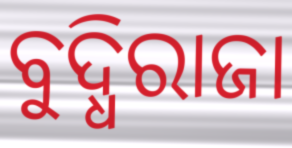
ବୁଦ୍ଧିରାଜା